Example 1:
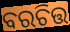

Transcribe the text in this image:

ବରଚିତ୍ତ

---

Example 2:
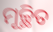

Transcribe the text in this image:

ମୂଚ୍ଛିତ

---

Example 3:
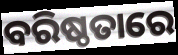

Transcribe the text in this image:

ବରିଷ୍ଠତାରେ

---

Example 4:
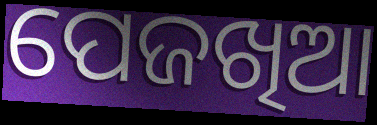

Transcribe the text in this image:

ପେଜଖିଆ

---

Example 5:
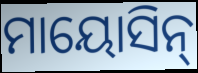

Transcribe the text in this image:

ମାୟୋସିନ୍